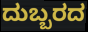
ದುಬ್ಬರದ